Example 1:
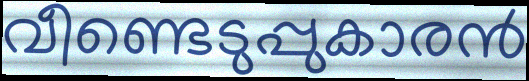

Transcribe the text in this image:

വീണ്ടെടുപ്പുകാരൻ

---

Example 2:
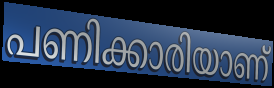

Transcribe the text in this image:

പണിക്കാരിയാണ്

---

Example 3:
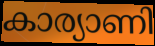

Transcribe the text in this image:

കാര്യാണി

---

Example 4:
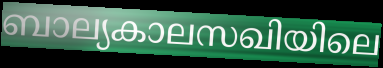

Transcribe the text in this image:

ബാല്യകാലസഖിയിലെ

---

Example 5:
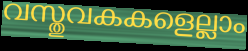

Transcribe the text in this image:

വസ്തുവകകളെല്ലാം